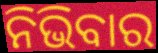
ନିଭିବାର